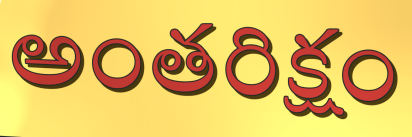
అంతరిక్షం